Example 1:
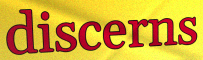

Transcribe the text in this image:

discerns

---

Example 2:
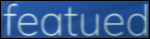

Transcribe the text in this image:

featued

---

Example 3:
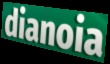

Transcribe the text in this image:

dianoia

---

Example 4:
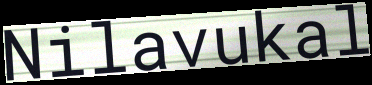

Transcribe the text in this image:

Nilavukal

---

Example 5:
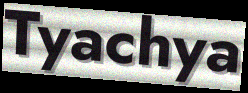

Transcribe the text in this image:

Tyachya